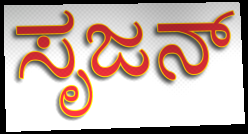
ಸೃಜನ್